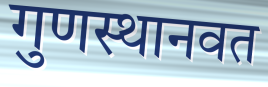
गुणस्थानवत